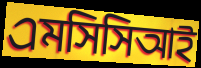
এমসিসিআই